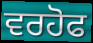
ਵਰਹੋਫ